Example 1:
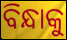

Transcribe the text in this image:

ବିନ୍ଧାକୁ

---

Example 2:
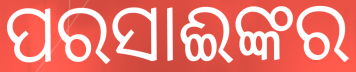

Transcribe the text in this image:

ପରସାଈଙ୍କର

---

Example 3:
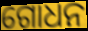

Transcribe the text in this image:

ଗୋଧନ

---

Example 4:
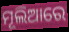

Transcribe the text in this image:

ମୂଲିଆରେ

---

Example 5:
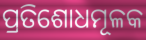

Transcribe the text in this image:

ପ୍ରତିଶୋଧମୂଳକ